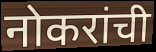
नोकरांची